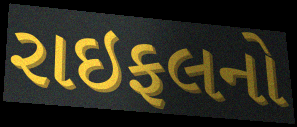
રાઇફલનો